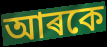
আৰকে